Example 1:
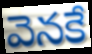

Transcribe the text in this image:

వెనకే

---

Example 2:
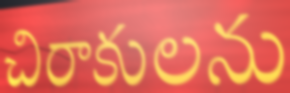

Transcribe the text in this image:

చిరాకులను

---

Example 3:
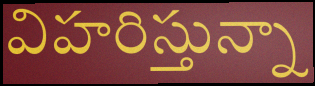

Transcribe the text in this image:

విహరిస్తున్నా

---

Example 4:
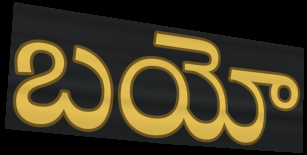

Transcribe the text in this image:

బయో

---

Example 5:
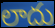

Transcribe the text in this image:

లాదు